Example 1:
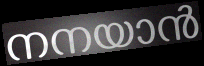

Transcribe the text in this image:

നനയാൻ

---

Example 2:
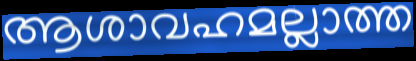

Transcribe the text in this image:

ആശാവഹമല്ലാത്ത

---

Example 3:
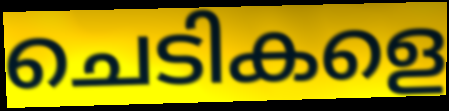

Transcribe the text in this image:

ചെടികളെ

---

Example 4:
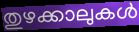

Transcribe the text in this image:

തുഴക്കാലുകൾ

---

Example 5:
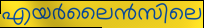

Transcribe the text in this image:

എയർലൈൻസിലെ